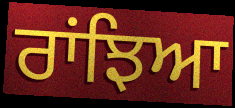
ਰਾਂਝਿਆ